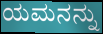
ಯಮನನ್ನು